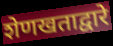
शेणखताद्वारे